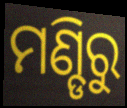
ମଣ୍ଡିରୁ